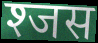
श्जस